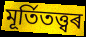
মূৰ্তিতত্ত্বৰ